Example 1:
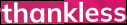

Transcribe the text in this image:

thankless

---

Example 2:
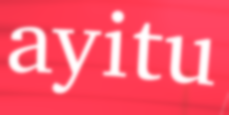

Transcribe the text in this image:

ayitu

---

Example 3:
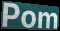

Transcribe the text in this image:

Pom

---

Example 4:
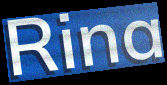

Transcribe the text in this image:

Rina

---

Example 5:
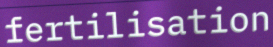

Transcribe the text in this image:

fertilisation